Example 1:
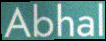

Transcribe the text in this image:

Abhal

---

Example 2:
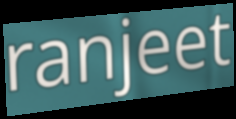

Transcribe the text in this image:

ranjeet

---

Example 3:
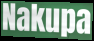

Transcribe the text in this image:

Nakupa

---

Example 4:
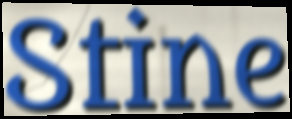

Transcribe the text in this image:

Stine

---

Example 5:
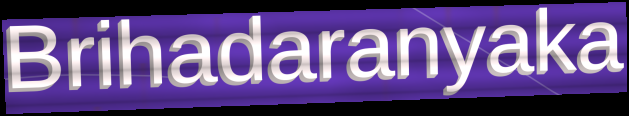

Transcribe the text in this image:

Brihadaranyaka